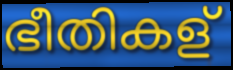
ഭീതികള്